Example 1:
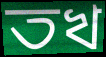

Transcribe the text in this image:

তখ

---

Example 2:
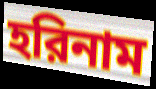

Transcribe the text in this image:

হরিনাম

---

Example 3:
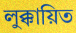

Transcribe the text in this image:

লুক্কায়িত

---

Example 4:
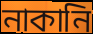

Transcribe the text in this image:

নাকানি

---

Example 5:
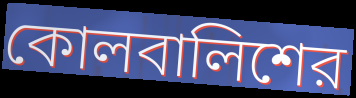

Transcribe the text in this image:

কোলবালিশের